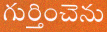
గుర్తించెను